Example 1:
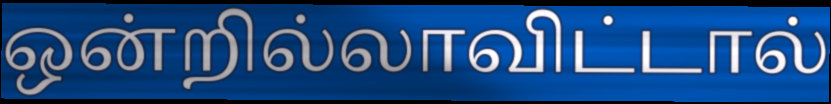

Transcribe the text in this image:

ஒன்றில்லாவிட்டால்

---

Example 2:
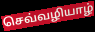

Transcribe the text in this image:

செவ்வழியாழ்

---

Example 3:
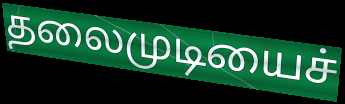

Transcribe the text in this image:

தலைமுடியைச்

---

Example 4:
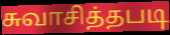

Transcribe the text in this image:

சுவாசித்தபடி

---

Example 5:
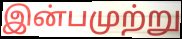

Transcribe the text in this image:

இன்பமுற்று